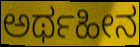
ಅರ್ಥಹೀನ